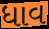
ધાવ